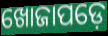
ଖୋଜାପଡ଼େ